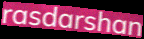
rasdarshan